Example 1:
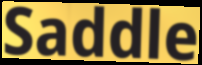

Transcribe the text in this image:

Saddle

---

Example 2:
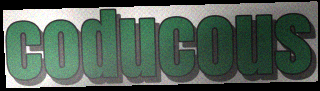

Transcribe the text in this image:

coducous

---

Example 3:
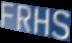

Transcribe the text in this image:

FRHS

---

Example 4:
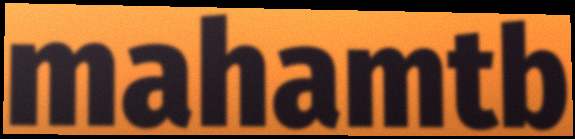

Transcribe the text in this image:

mahamtb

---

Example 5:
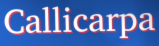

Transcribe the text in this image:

Callicarpa